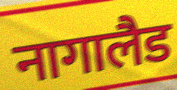
नागालैड